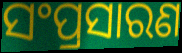
ସଂପ୍ରସାରଣ